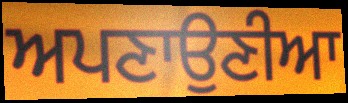
ਅਪਣਾਉਣੀਆ